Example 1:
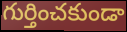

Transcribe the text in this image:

గుర్తించకుండా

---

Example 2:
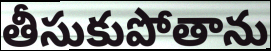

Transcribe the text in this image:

తీసుకుపోతాను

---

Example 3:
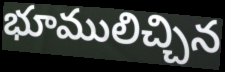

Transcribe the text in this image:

భూములిచ్చిన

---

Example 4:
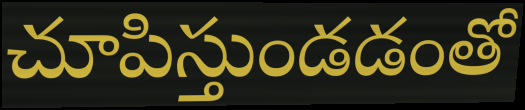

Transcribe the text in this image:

చూపిస్తుండడంతో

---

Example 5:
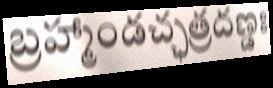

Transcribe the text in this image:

బ్రహ్మాండచ్ఛత్రదణ్డః